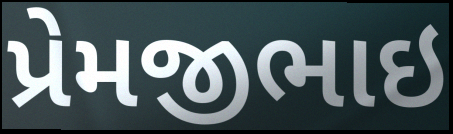
પ્રેમજીભાઇ